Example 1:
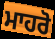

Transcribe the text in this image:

ਮਾਹਰੋ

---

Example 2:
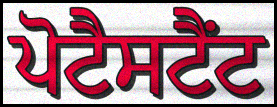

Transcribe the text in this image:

ਪੋਟੈਸਟੈਂਟ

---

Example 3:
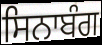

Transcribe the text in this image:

ਸਿਨਾਬੰਗ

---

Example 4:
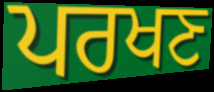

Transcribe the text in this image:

ਪਰਖਣ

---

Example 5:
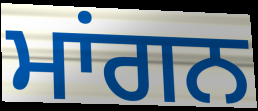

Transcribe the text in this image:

ਮਾਂਗਨ